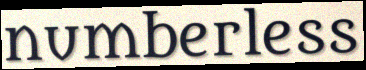
numberless